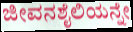
ಜೀವನಶೈಲಿಯನ್ನೇ